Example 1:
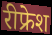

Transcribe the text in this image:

रीफ्रेश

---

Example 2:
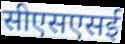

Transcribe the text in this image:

सीएसएसई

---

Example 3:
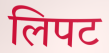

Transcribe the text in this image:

लिपट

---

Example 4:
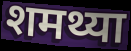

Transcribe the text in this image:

शमथ्या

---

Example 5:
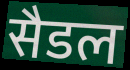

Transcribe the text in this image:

सैडल